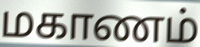
மகாணம்